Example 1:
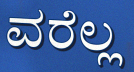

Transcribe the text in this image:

ವರೆಲ್ಲ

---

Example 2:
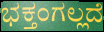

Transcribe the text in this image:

ಭಕ್ತಂಗಲ್ಲದೆ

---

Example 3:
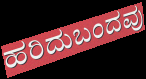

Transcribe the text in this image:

ಹರಿದುಬಂದವು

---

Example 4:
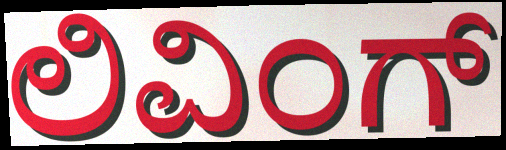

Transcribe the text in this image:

ಲಿವಿಂಗ್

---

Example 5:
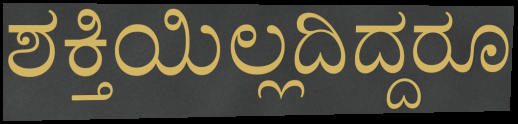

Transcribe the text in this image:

ಶಕ್ತಿಯಿಲ್ಲದಿದ್ದರೂ